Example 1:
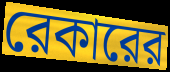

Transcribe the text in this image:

রেকারের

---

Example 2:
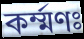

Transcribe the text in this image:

কর্ম্মণঃ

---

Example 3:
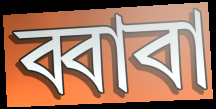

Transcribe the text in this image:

ব্বাবা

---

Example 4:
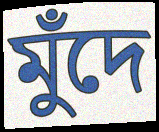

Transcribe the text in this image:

মুঁদে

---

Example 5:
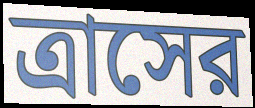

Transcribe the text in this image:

ত্রাসের